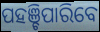
ପହଞ୍ଚିପାରିବେ